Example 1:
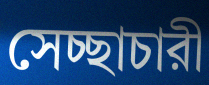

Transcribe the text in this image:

সেচ্ছাচারী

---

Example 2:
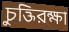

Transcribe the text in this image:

চুক্তিরক্ষা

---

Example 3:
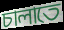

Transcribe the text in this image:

চালাতে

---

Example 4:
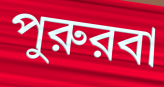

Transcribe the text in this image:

পুরুরবা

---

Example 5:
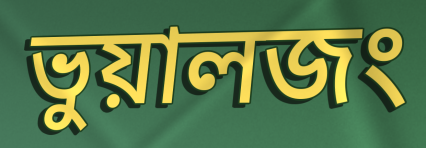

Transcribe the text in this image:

ভুয়ালজং